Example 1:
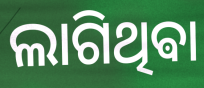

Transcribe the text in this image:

ଲାଗିଥିଵା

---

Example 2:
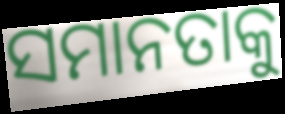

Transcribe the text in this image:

ସମାନତାକୁ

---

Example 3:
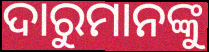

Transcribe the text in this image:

ଦାରୁମାନଙ୍କୁ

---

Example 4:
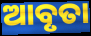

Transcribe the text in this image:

ଆବୃତା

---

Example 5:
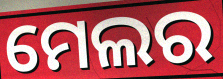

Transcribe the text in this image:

ମେଲର